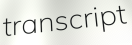
transcript